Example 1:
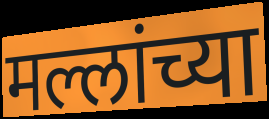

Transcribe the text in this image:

मल्लांच्या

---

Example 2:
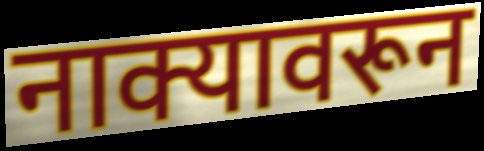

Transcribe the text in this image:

नाक्यावरून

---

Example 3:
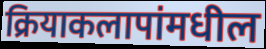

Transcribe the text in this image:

क्रियाकलापांमधील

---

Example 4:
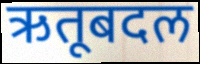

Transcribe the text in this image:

ऋतूबदल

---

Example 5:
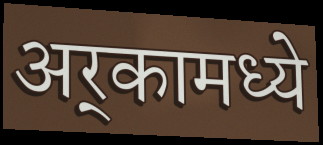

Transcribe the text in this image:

अर्कामध्ये